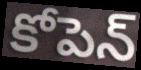
కోపెన్